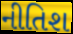
નીતિશ